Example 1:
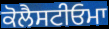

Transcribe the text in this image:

ਕੋਲੈਸਟੀਓਮਾ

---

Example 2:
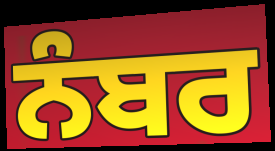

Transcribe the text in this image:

ਨੰਬਰ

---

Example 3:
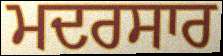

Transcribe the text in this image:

ਮਦਰਸਾਰ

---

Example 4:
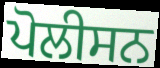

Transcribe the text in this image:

ਪੋਲੀਸਨ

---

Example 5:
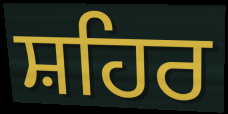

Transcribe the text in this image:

ਸ਼ਹਿਰ